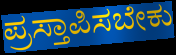
ಪ್ರಸ್ತಾಪಿಸಬೇಕು